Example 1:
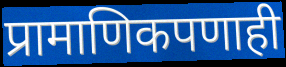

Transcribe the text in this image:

प्रामाणिकपणाही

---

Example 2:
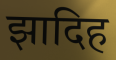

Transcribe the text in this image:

झादिह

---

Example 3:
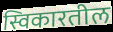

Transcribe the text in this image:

स्विकारतील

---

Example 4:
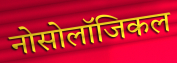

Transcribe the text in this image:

नोसोलॉजिकल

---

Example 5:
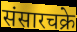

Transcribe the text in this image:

संसारचक्रे